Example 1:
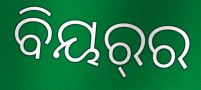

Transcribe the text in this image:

ବିୟର୍‌ର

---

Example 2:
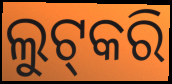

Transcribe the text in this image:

ଲୁଟ୍‌କରି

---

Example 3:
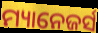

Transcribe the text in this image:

ମ୍ୟାନେଜର୍ସ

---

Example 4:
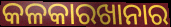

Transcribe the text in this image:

କଳକାରଖାନାର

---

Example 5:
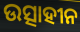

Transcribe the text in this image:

ଉତ୍ସାହୀନ